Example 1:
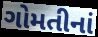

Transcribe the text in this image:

ગોમતીનાં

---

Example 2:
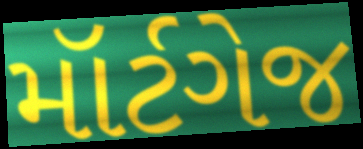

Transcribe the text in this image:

મૉર્ટગેજ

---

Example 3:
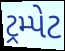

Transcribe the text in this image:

ટ્રમ્પેટ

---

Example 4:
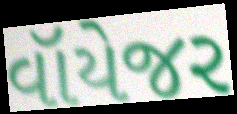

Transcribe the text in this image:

વૉયેજર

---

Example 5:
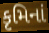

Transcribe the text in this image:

કૃમિનાં